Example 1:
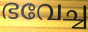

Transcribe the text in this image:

ഭവേച്ച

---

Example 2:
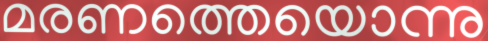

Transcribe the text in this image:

മരണത്തെയൊന്നു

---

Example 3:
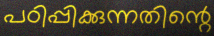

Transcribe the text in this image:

പഠിപ്പിക്കുന്നതിന്റെ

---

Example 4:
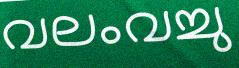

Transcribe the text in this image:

വലംവച്ചു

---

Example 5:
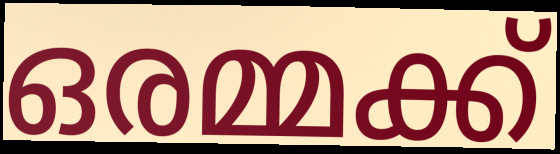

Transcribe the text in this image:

ഒരമ്മക്ക്